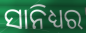
ସାନିଧ୍ୟର